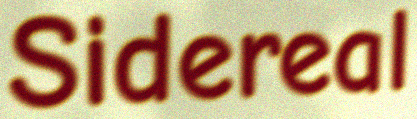
Sidereal